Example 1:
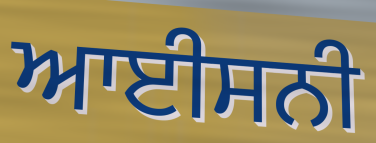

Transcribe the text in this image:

ਆਈਸਨੀ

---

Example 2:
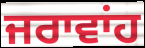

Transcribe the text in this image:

ਜਰਾਵਾਂਹ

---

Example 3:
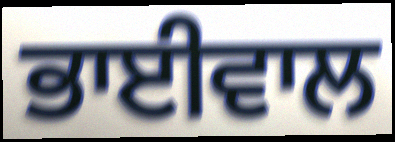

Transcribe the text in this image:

ਭਾਈਵਾਲ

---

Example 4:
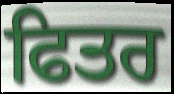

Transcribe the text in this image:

ਫਿਤਰ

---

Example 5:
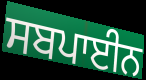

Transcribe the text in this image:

ਸਬਪਾਈਨ